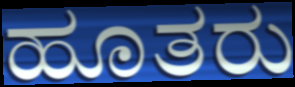
ಹೂತರು